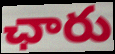
ఛారు